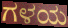
ಗಳಯ